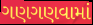
ગણગણવામાં